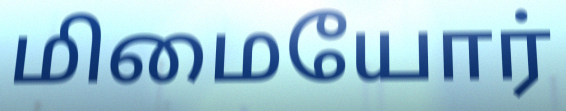
மிமையோர்